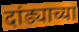
दांड्याच्या